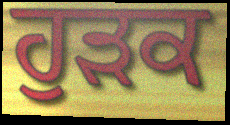
ਹੁੜਕ